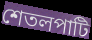
শেতলপাটি